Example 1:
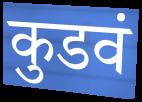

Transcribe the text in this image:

कुडवं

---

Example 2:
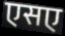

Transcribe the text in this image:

एसए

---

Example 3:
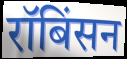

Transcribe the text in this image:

रॉबिंसन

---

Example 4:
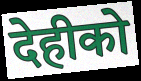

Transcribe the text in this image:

देहीको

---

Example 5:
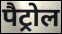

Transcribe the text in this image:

पैट्रोल